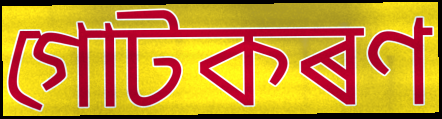
গোটকৰণ